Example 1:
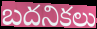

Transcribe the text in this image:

బదనికలు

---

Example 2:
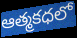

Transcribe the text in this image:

ఆత్మకధలో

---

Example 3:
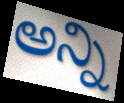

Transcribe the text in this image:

అన్ని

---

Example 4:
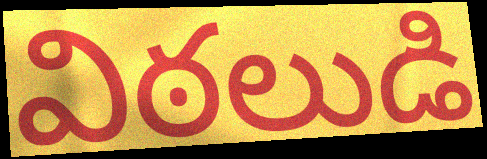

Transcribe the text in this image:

విఠలుడి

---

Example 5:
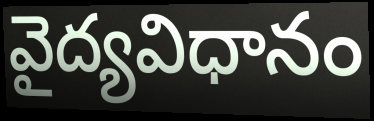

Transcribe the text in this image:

వైద్యవిధానం